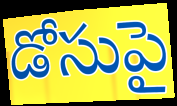
డోసుపై